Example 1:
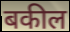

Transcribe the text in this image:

बकील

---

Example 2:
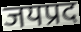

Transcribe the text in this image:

जयप्रद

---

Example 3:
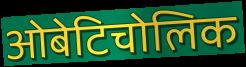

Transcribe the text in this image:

ओबेटिचोलिक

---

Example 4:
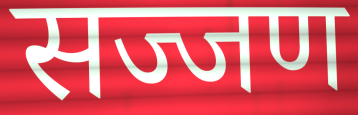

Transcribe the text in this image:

सज्जण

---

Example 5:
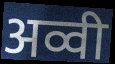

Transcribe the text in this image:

अव्वी